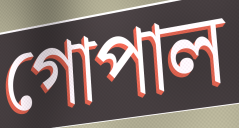
গোপাল